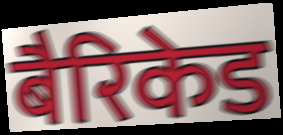
बैरिकेड